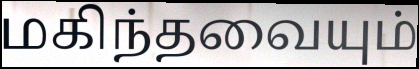
மகிந்தவையும்